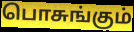
பொசுங்கும்